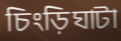
চিংড়িঘাটা